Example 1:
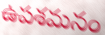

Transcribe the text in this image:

ఉపశమనం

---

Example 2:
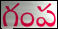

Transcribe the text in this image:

గంప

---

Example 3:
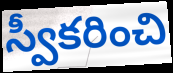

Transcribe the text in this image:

స్వీకరించి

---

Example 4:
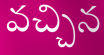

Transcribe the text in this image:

వచ్చిన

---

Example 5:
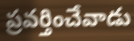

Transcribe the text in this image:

ప్రవర్తించేవాడు